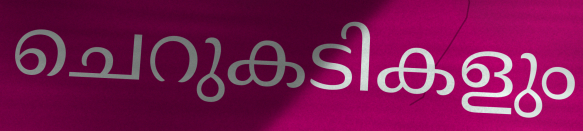
ചെറുകടികളും